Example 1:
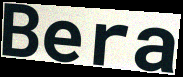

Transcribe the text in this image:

Bera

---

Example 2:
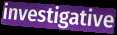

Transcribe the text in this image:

investigative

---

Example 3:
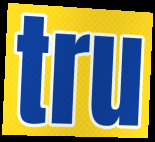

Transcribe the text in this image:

tru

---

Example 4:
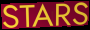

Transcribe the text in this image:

STARS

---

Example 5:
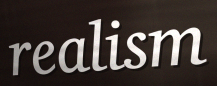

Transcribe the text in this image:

realism